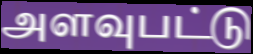
அளவுபட்டு